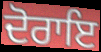
ਦੋਰਾਇ